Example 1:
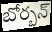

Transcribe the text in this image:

బోర్బన్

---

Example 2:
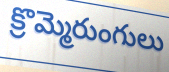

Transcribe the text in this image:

క్రొమ్మెరుంగులు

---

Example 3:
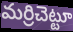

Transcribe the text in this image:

మర్రిచెట్టూ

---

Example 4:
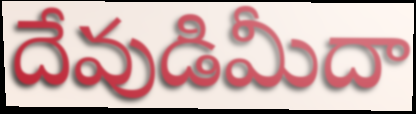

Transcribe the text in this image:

దేవుడిమీదా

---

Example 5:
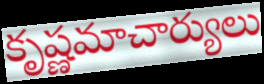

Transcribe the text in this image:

కృష్ణమాచార్యులు